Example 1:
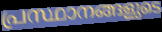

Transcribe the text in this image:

പ്രസ്ഥാനങ്ങളുടെ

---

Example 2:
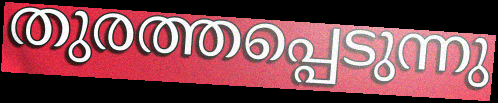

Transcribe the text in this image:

തുരത്തപ്പെടുന്നു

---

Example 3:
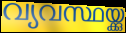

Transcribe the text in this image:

വ്യവസ്ഥയ്ക്കു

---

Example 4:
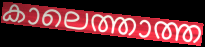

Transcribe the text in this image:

കാലെത്താത്ത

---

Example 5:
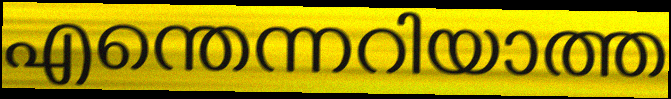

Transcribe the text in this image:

എന്തെന്നറിയാത്ത